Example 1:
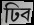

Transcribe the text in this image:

ঢিব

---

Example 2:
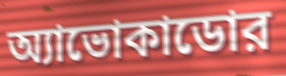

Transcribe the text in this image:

অ্যাভোকাডোর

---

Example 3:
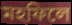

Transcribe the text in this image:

মহফিলে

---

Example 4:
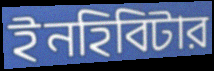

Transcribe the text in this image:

ইনহিবিটার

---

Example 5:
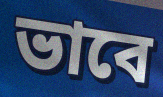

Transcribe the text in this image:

ভাবে